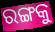
ରଙ୍ଗକୁ